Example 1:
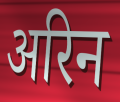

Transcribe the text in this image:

अरिन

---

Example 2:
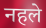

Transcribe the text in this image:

नहले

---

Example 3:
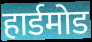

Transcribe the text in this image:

हार्डमोड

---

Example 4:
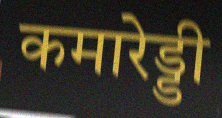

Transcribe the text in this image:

कमारेड्डी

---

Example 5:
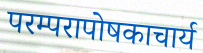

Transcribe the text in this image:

परम्परापोषकाचार्य